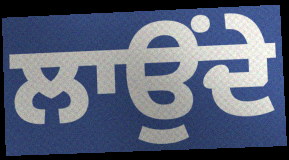
ਲਾਉਂਦੇ